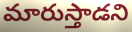
మారుస్తాడని